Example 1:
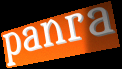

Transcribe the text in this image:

panra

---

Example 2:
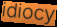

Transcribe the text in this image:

idiocy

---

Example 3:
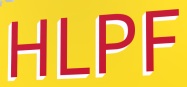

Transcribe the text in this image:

HLPF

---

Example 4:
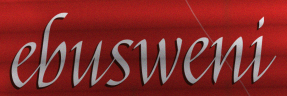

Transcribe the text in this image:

ebusweni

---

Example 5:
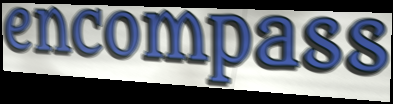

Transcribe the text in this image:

encompass